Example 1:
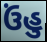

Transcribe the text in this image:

ઉંહુ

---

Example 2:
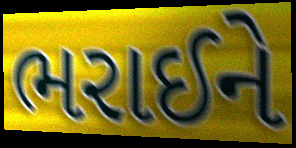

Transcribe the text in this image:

ભરાઈને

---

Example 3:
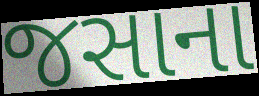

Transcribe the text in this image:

જસાના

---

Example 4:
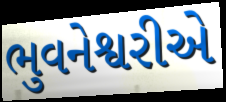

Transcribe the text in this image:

ભુવનેશ્વરીએ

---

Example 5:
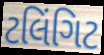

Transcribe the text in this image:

ટલિંગિટ